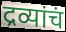
द्रव्यांचं